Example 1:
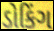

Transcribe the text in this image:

ડોકિંગ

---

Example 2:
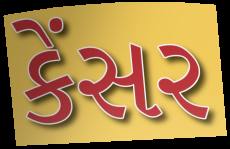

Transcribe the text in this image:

કેંસર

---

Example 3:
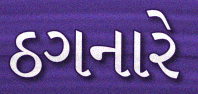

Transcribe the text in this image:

ઠગનારે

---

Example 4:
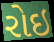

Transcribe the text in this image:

રોઇ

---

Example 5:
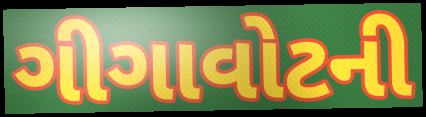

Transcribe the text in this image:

ગીગાવોટની